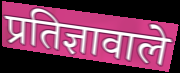
प्रतिज्ञावाले